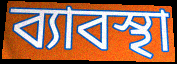
ব্যাবস্থা